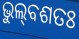
ଭୁଲ୍‌ବଶତଃ